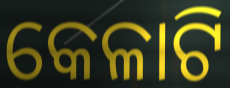
କେଳାଟି